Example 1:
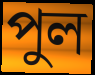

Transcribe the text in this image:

পুল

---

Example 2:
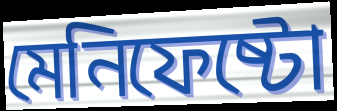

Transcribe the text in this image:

মেনিফেষ্টো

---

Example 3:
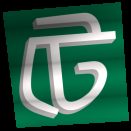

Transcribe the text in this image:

টে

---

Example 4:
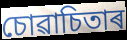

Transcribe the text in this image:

চোৱাচিতাৰ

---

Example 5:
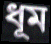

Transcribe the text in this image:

ধূম